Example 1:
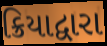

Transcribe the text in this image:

ક્રિયાદ્વારા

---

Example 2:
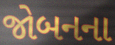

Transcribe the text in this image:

જોબનના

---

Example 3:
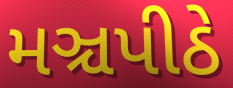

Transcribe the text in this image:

મઞ્ચપીઠે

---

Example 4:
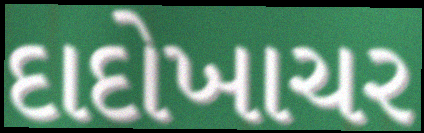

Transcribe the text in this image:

દાદોખાચર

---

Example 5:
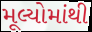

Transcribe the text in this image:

મૂલ્યોમાંથી